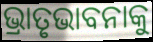
ଭ୍ରାତୃଭାବନାକୁ